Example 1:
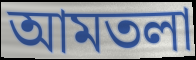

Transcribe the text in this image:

আমতলা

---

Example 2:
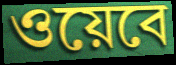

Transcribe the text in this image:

ওয়েবে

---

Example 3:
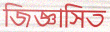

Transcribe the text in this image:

জিজ্ঞাসিত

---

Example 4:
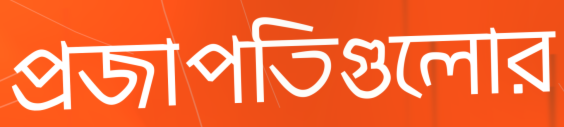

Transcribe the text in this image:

প্রজাপতিগুলোর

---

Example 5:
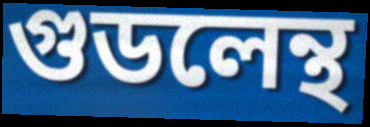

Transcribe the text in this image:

গুডলেন্থ